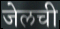
जेलची